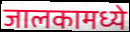
जालकामध्ये